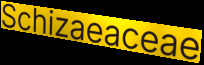
Schizaeaceae